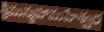
శ్రీమన్మహామహేశ్వర